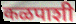
कळपाशी